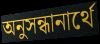
অনুসন্ধানার্থে